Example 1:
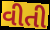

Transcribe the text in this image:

વીતી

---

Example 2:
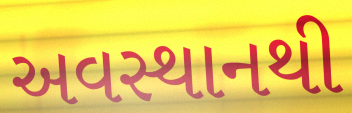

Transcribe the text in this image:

અવસ્થાનથી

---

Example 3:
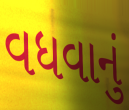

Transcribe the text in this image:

વધવાનું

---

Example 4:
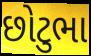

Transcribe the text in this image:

છોટુભા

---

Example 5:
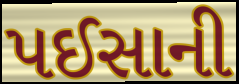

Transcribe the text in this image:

પઈસાની